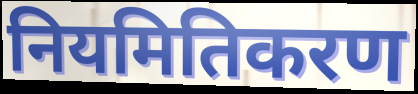
नियमितिकरण